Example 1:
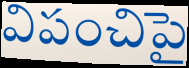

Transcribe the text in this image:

విపంచిపై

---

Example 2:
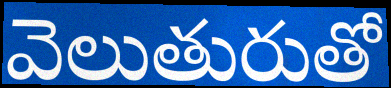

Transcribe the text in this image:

వెలుతురుతో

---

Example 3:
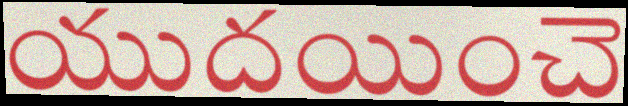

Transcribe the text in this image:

యుదయించె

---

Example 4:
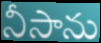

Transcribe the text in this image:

నీసాను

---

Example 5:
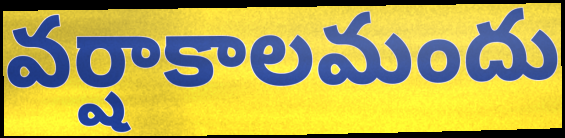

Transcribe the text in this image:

వర్షాకాలమందు